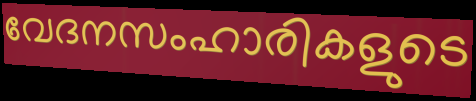
വേദനസംഹാരികളുടെ